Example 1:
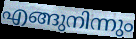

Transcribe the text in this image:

എങ്ങുനിന്നും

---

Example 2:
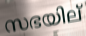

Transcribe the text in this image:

സഭയില്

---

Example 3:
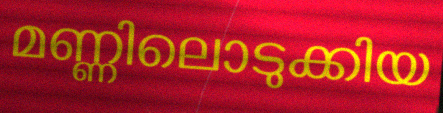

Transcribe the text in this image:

മണ്ണിലൊടുക്കിയ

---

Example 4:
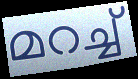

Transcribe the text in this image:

മറച്ച്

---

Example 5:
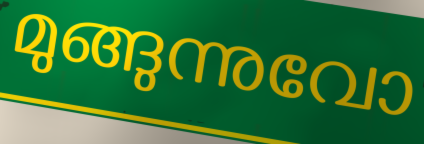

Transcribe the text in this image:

മുങ്ങുന്നുവോ